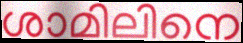
ശാമിലിനെ